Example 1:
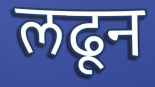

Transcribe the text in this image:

लढून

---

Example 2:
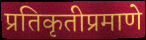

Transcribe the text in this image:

प्रतिकृतीप्रमाणे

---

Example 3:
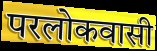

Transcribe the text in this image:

परलोकवासी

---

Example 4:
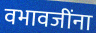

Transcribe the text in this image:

वभावजींना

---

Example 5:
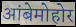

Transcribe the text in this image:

आंबेमोहोर